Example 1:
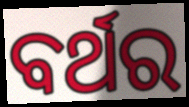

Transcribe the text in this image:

ବର୍ଥର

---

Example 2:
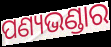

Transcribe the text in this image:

ପଣ୍ୟଭଣ୍ଡାର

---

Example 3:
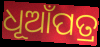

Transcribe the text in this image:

ଧୂଆଁପତ୍ର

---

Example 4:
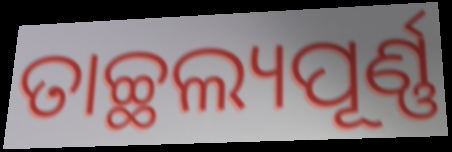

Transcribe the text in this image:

ତାଚ୍ଛଲ୍ୟପୂର୍ଣ୍ଣ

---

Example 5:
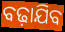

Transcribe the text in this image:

ବଢ଼ାଯିବ